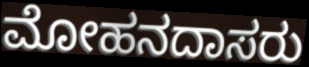
ಮೋಹನದಾಸರು